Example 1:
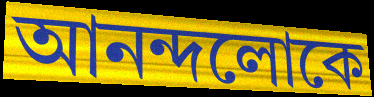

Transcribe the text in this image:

আনন্দলোকে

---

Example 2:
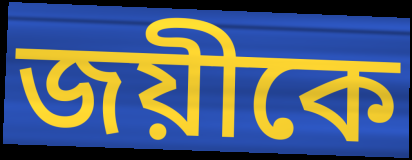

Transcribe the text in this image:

জয়ীকে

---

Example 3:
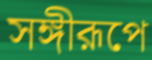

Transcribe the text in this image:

সঙ্গীরূপে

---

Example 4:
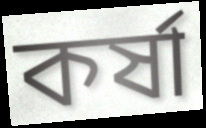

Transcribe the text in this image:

কর্ষা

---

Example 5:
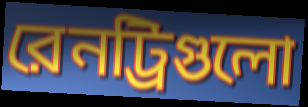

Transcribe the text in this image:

রেনট্রিগুলো